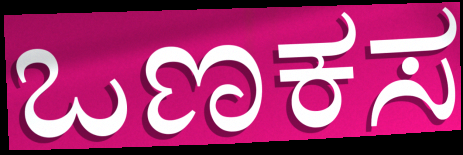
ಒಣಕಸ